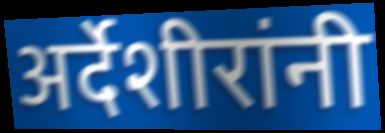
अर्देशीरांनी